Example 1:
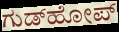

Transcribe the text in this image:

ಗುಡ್‌ಹೋಪ್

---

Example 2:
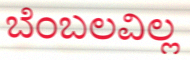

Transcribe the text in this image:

ಬೆಂಬಲವಿಲ್ಲ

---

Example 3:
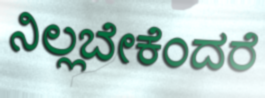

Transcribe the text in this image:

ನಿಲ್ಲಬೇಕೆಂದರೆ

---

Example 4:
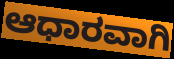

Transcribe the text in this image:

ಆಧಾರವಾಗಿ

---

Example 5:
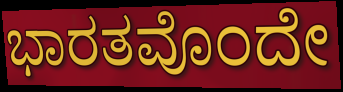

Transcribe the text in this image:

ಭಾರತವೊಂದೇ